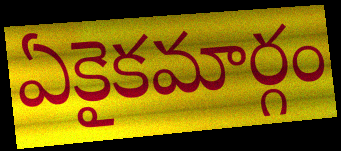
ఏకైకమార్గం